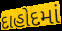
દાહોદમાં